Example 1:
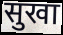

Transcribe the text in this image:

सुखा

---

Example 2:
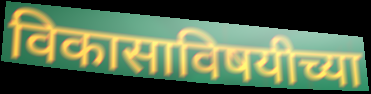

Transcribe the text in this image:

विकासाविषयीच्या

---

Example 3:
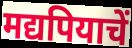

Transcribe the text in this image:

मद्यपियाचें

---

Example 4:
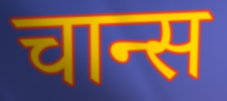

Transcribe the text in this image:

चान्स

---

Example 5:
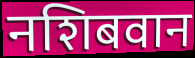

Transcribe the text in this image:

नशिबवान